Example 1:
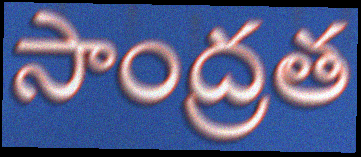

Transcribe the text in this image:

సాంద్రత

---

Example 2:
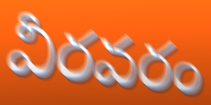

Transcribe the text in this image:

వీరవరం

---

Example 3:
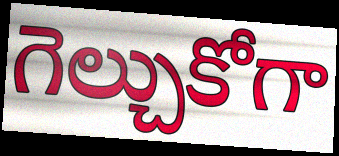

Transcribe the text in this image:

గెల్చుకోగా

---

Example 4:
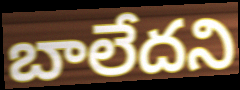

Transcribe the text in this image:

బాలేదని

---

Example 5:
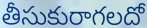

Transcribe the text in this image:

తీసుకురాగలదో